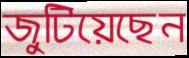
জুটিয়েছেন